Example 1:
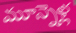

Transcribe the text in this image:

మూన్నెళ్ల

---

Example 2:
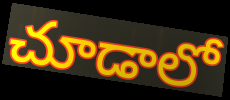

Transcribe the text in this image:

చూడాలో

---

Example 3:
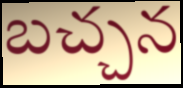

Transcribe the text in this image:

బచ్చన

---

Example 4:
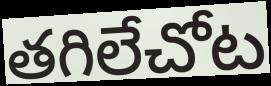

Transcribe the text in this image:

తగిలేచోట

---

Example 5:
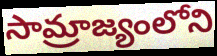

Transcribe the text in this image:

సామ్రాజ్యంలోని